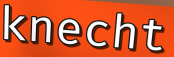
knecht